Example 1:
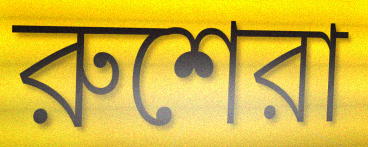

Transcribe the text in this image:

রুশেরা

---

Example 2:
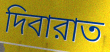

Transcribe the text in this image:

দিবারাত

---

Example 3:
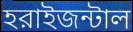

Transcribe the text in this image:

হরাইজন্টাল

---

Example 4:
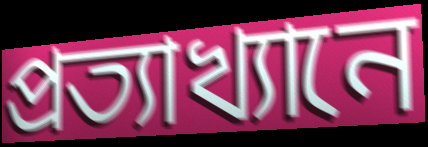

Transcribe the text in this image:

প্রত্যাখ্যানে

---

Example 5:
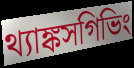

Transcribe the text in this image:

থ্যাঙ্কসগিভিং